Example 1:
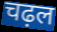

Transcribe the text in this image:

चढ़ल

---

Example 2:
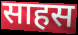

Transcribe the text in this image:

साहस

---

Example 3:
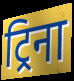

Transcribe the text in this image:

ट्रिना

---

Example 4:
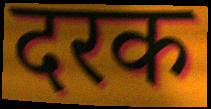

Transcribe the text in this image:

दरक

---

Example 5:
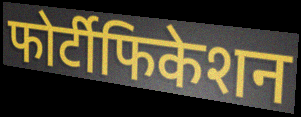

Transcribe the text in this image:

फोर्टीफिकेशन